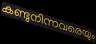
കണ്ടുനിന്നവരെയും